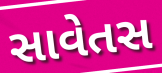
સાવેતસ